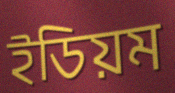
ইডিয়ম